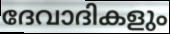
ദേവാദികളും